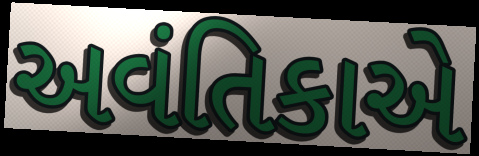
અવંતિકાએ